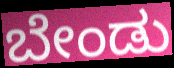
ಬೇಂಡು